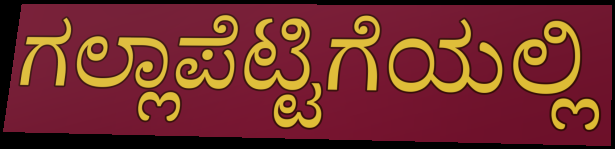
ಗಲ್ಲಾಪೆಟ್ಟಿಗೆಯಲ್ಲಿ